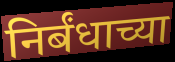
निर्बंधाच्या